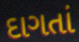
દાગતાં